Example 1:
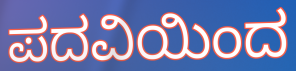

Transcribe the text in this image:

ಪದವಿಯಿಂದ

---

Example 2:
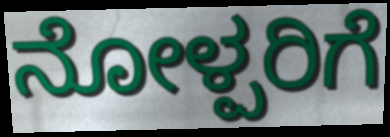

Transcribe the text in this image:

ನೋಳ್ಪರಿಗೆ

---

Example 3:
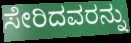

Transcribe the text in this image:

ಸೇರಿದವರನ್ನು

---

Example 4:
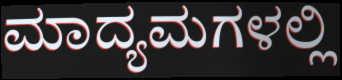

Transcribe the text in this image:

ಮಾದ್ಯಮಗಳಲ್ಲಿ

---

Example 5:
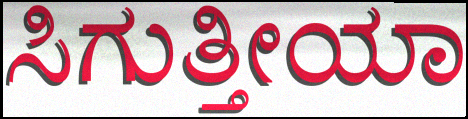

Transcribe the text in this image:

ಸಿಗುತ್ತೀಯಾ